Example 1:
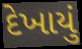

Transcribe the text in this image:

દેખાયું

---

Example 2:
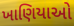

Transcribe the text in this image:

ખાણિયાઓ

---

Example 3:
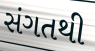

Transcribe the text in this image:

સંગતથી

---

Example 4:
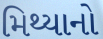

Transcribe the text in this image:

મિથ્યાનો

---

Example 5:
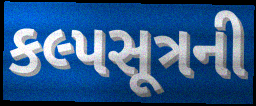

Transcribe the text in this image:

કલ્પસૂત્રની